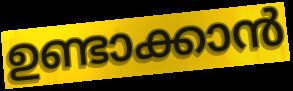
ഉണ്ടാക്കാൻ